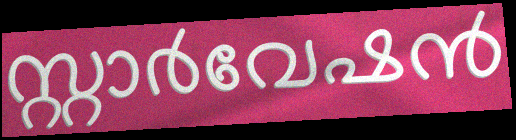
സ്റ്റാർവേഷൻ